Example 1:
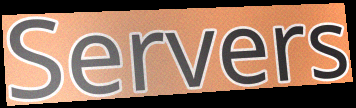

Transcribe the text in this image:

Servers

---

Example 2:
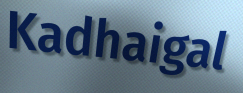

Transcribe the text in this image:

Kadhaigal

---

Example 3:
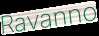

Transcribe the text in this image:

Ravanno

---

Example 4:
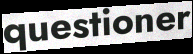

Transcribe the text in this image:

questioner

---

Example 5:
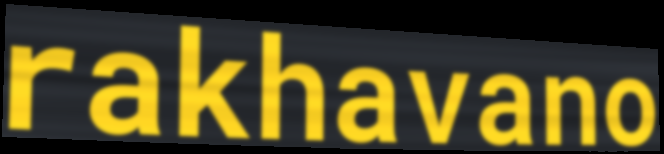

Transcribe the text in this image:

rakhavano